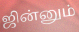
ஜின்னும்